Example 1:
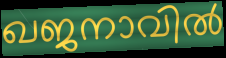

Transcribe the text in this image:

ഖജനാവിൽ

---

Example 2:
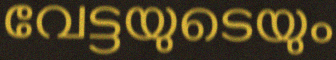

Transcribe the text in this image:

വേട്ടയുടെയും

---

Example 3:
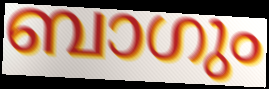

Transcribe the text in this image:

ബാഗും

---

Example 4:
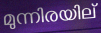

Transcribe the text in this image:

മുന്നിരയില്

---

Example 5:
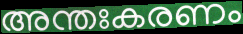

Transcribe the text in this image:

അന്തഃകരണം